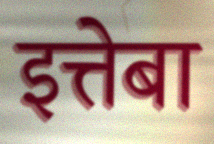
इत्तेबा